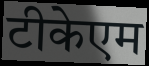
टीकेएम